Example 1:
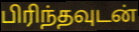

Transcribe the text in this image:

பிரிந்தவுடன்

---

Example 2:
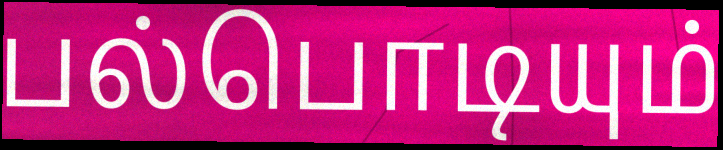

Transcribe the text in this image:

பல்பொடியும்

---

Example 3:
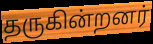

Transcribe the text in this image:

தருகின்றனர்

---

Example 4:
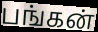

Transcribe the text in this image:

பங்கன்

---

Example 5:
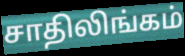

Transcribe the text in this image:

சாதிலிங்கம்